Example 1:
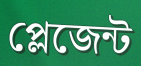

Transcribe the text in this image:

প্লেজেন্ট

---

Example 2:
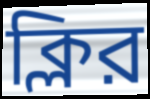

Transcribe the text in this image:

ক্লির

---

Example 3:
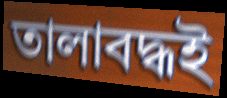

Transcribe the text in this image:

তালাবদ্ধই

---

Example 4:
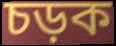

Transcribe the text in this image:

চড়ক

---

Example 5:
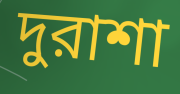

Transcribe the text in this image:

দুরাশা